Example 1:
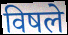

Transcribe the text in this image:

विषले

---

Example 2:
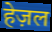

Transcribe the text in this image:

हेज़ल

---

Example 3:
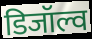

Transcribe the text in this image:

डिजॉल्व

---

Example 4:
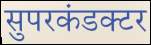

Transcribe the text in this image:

सुपरकंडक्टर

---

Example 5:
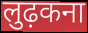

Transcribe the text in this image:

लुढ़कना